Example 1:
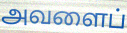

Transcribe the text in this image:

அவளைப்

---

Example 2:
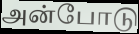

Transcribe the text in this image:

அன்போடு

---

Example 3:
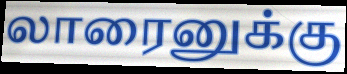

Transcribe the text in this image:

லாரைனுக்கு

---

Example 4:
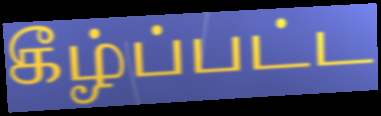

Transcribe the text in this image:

கீழ்ப்பட்ட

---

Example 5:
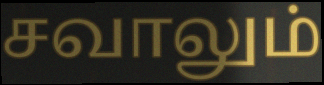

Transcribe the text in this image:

சவாலும்